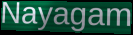
Nayagam